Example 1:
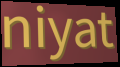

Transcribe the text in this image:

niyat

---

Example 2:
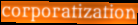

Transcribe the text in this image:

corporatization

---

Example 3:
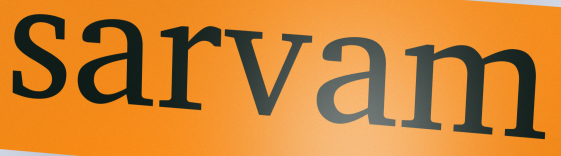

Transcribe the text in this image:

sarvam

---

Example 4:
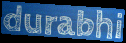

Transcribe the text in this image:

durabhi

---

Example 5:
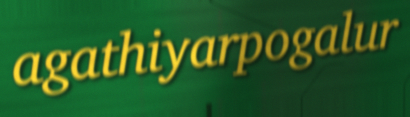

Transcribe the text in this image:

agathiyarpogalur